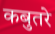
कबुतरे